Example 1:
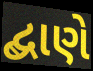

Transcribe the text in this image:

દ્બાણે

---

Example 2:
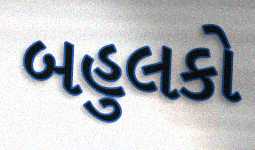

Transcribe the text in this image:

બહુલકો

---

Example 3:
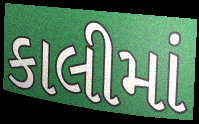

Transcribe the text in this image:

કાલીમાં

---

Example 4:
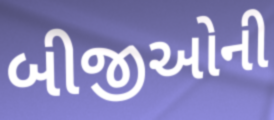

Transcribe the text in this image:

બીજીઓની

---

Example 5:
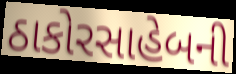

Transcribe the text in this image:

ઠાકોરસાહેબની